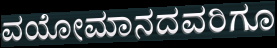
ವಯೋಮಾನದವರಿಗೂ